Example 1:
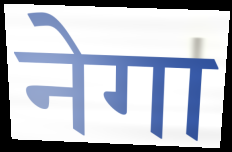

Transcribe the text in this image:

नेगा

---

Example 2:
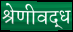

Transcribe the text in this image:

श्रेणीवद्ध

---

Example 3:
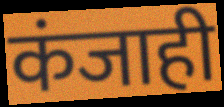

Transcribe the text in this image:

कंजाही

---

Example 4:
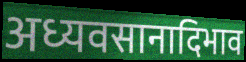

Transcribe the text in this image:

अध्यवसानादिभाव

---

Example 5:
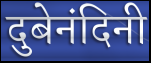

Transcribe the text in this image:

दुबेनंदिनी